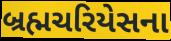
બ્રહ્મચરિયેસના